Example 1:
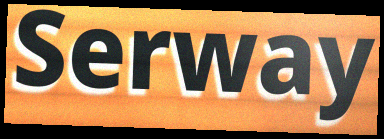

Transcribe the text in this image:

Serway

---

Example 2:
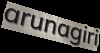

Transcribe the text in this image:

arunagiri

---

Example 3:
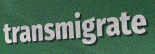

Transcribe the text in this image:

transmigrate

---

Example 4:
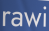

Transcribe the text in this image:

rawi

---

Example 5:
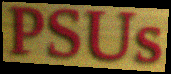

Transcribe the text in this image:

PSUs